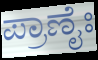
ಪ್ರಾಣೈಃ